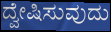
ದ್ವೇಷಿಸುವುದು